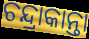
ଚନ୍ଦ୍ରାକାନ୍ତା